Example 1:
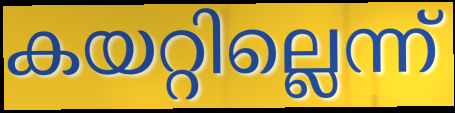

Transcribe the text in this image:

കയറ്റില്ലെന്ന്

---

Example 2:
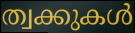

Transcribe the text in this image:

ത്വക്കുകൾ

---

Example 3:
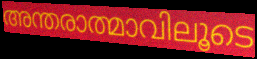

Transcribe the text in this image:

അന്തരാത്മാവിലൂടെ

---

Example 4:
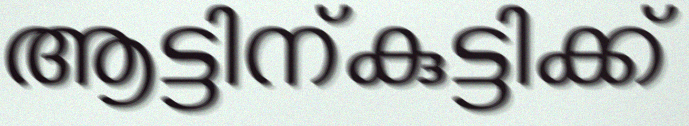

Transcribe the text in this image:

ആട്ടിന്കുട്ടിക്ക്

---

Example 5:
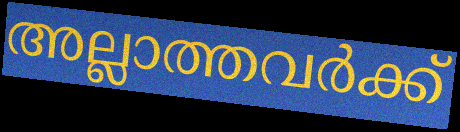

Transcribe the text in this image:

അല്ലാത്തവർക്ക്